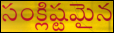
సంక్లిష్టమైన